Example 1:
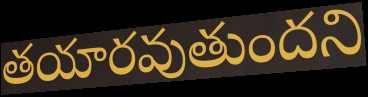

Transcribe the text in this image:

తయారవుతుందని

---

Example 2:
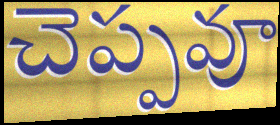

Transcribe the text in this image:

చెప్పవూ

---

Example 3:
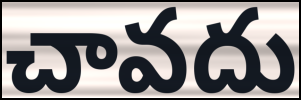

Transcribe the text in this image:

చావదు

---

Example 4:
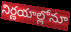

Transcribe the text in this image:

నిర్ణయాల్లోనూ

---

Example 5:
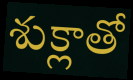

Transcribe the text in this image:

శుక్లాతో